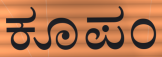
ಕೂಪಂ